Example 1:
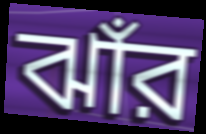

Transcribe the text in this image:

ঝাঁর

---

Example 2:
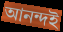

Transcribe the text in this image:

আনন্দই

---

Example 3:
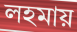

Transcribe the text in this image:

লহমায়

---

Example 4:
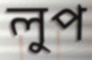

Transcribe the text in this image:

লুপ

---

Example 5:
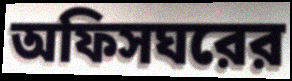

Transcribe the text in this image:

অফিসঘরের